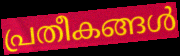
പ്രതീകങ്ങൾ